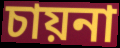
চায়না